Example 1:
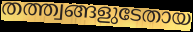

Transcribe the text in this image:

തത്ത്വങ്ങളുടേതായ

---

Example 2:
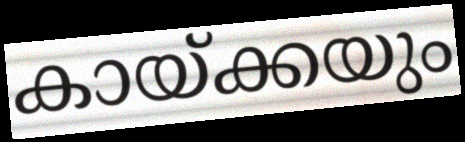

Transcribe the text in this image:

കായ്ക്കയും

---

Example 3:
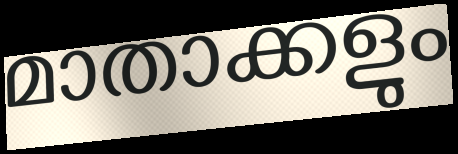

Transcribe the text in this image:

മാതാക്കളും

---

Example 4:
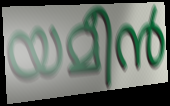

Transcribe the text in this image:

യമീൻ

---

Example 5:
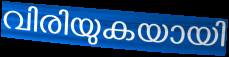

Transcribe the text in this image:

വിരിയുകയായി